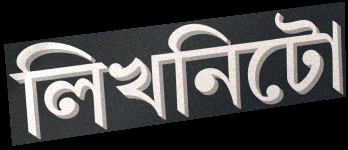
লিখনিটো